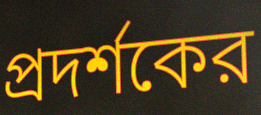
প্রদর্শকের